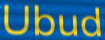
Ubud